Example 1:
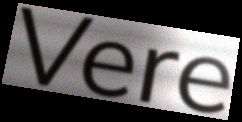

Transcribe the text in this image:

Vere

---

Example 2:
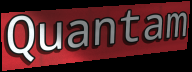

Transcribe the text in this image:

Quantam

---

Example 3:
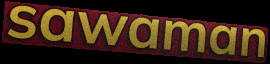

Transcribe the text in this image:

sawaman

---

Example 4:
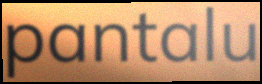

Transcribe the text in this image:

pantalu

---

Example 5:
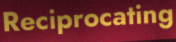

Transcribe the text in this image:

Reciprocating